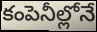
కంపెనీల్లోనే